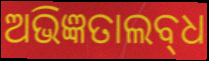
ଅଭିଜ୍ଞତାଲବ୍‌ଧ